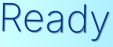
Ready